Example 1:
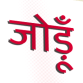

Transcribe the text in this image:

जोड़ूँ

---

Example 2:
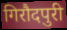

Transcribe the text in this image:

गिरौदपुरी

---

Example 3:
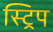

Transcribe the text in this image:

स्ट्रिप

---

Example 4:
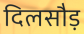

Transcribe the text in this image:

दिलसौड़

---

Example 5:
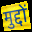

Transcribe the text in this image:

मुद्दों